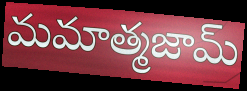
మమాత్మజామ్